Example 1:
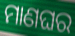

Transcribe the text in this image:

ମାଣଘର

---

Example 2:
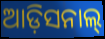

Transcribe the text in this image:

ଆଡ଼ିସନାଲ୍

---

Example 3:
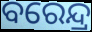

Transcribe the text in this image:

ବରେନ୍ଦ୍ର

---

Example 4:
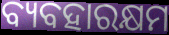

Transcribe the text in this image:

ବ୍ୟବହାରକ୍ଷମ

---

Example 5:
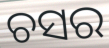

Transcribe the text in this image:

ଚସର